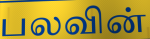
பலவின்